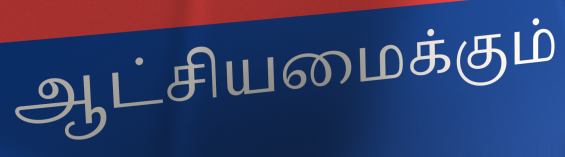
ஆட்சியமைக்கும்